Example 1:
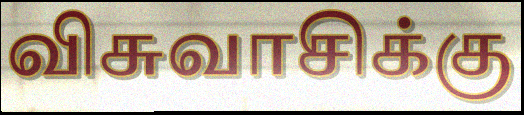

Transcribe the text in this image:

விசுவாசிக்கு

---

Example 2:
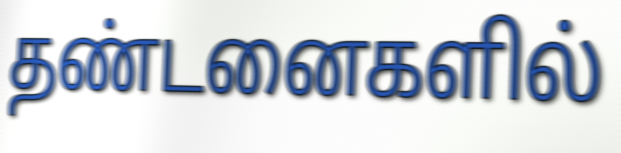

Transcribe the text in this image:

தண்டனைகளில்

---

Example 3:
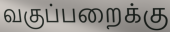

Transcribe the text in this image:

வகுப்பறைக்கு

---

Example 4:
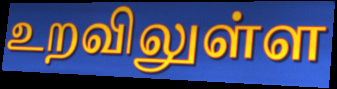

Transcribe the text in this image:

உறவிலுள்ள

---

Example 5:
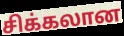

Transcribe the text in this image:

சிக்கலான